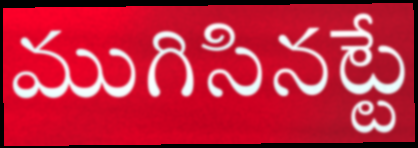
ముగిసినట్టే